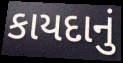
કાયદાનું